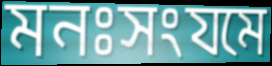
মনঃসংযমে